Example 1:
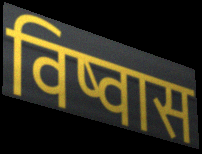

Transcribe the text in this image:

विष्वास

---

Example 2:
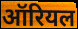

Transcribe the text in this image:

ऑरियल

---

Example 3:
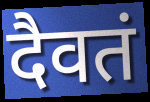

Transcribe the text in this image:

दैवतं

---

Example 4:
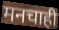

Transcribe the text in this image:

मनचाही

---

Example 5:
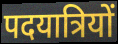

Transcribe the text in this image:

पदयात्रियों